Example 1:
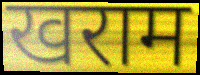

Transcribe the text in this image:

खराम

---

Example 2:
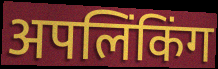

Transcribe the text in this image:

अपलिंकिंग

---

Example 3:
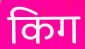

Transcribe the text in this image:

किग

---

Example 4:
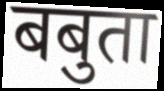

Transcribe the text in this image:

बबुता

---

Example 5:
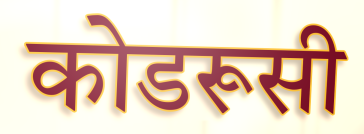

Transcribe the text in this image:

कोडरूसी